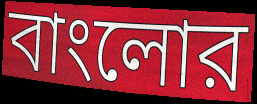
বাংলোর